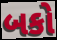
બકો